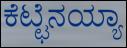
ಕೆಟ್ಟೆನಯ್ಯಾ